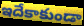
ఇదేకాకుండా